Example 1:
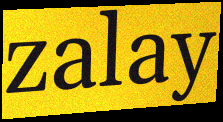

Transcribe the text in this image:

zalay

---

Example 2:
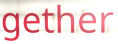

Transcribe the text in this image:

gether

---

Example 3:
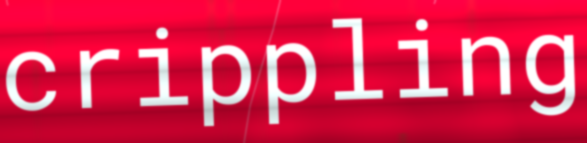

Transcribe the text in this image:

crippling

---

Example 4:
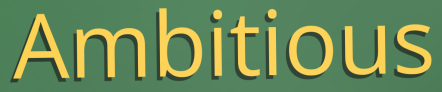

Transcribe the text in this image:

Ambitious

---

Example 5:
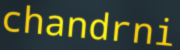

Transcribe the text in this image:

chandrni